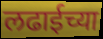
लढाईच्या